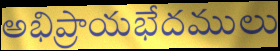
అభిప్రాయభేదములు